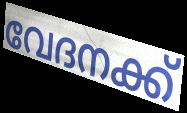
വേദനക്ക്